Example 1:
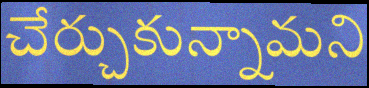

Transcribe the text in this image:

చేర్చుకున్నామని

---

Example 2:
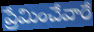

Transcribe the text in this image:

ప్రేమించేవారే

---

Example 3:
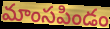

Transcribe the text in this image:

మాంసపిండం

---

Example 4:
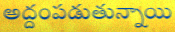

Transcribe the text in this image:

అద్దంపడుతున్నాయి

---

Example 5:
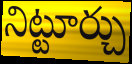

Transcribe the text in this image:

నిట్టూర్చు